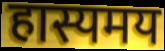
हास्यमय